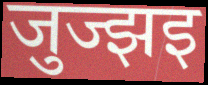
जुज्झइ